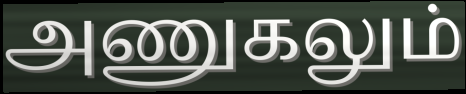
அணுகலும்